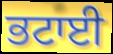
ਭਟਾਈ